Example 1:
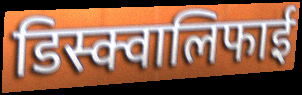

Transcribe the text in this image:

डिस्क्वालिफाई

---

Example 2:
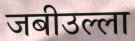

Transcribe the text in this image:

जबीउल्ला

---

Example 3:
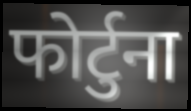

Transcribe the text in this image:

फोर्टुना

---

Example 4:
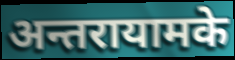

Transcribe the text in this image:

अन्तरायामके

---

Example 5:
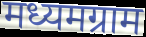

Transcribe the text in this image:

मध्यमग्राम